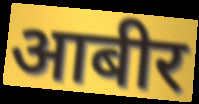
आबीर